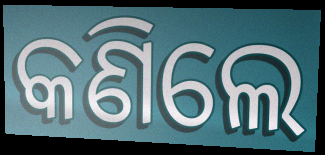
କଣିଲେ